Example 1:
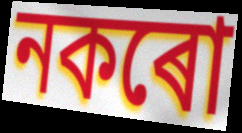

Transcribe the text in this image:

নকৰো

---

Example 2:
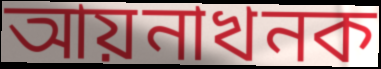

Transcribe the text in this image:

আয়নাখনক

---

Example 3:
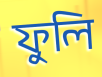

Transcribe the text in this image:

ফুলি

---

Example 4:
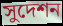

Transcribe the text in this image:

সুদেশন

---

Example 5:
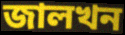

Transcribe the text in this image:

জালখন